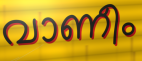
വാണീം